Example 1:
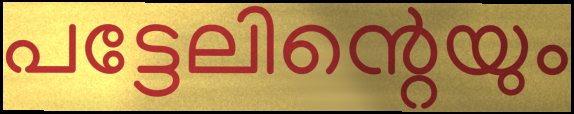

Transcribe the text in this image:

പട്ടേലിന്റെയും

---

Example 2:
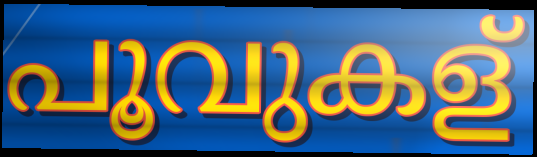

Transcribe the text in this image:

പൂവുകള്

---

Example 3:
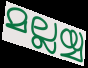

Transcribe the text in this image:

മല്ലയ്യ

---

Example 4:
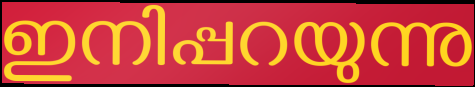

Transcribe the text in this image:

ഇനിപ്പറയുന്നു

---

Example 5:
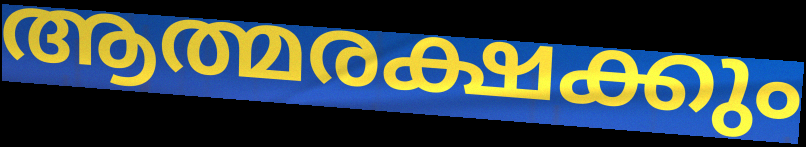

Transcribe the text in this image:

ആത്മരക്ഷക്കും